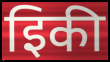
इिकी